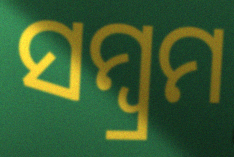
ସମ୍ବ୍ରମ